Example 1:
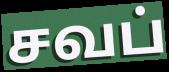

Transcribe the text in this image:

சவப்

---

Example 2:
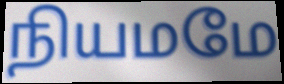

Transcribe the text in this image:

நியமமே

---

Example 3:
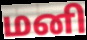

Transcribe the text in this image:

மனி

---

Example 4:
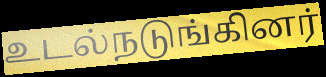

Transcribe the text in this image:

உடல்நடுங்கினர்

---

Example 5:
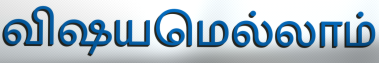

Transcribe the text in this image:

விஷயமெல்லாம்